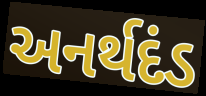
અનર્થદંડ